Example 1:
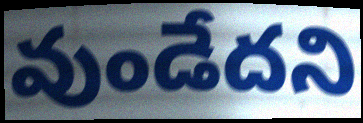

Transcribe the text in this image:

వుండేదని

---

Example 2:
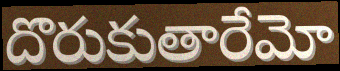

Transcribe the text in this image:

దొరుకుతారేమో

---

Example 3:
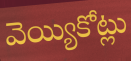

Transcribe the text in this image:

వెయ్యికోట్లు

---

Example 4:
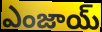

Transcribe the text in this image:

ఎంజాయ్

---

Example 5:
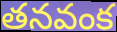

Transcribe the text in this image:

తనవంక